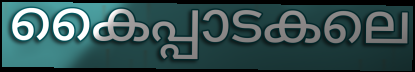
കൈപ്പാടകലെ